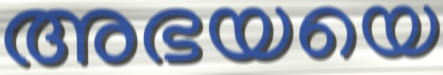
അഭയയെ